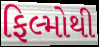
ફિલ્મોથી